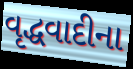
વૃદ્ધવાદીના